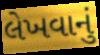
લેખવાનું